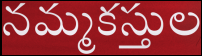
నమ్మకస్తుల